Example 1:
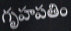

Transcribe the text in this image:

గృహపతిం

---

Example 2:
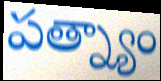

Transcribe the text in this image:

పత్న్యాం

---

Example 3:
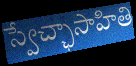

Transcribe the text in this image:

స్వేచ్ఛాసాహితి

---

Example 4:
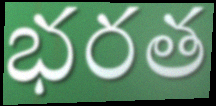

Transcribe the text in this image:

భరత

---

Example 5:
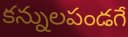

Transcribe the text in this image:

కన్నులపండగే